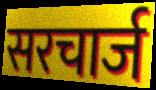
सरचार्ज